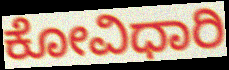
ಕೋವಿಧಾರಿ